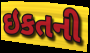
ઇકતની